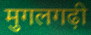
मुगलगढ़ी